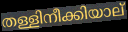
തള്ളിനീക്കിയാല്